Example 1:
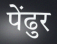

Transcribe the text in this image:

पेंढुर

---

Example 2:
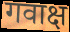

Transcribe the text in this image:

गवाक्ष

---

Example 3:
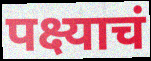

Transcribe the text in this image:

पक्ष्याचं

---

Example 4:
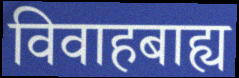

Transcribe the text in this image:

विवाहबाह्य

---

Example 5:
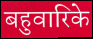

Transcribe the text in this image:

बहुवारिके